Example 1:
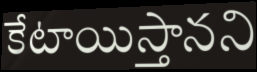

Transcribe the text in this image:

కేటాయిస్తానని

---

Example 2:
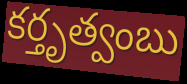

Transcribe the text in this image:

కర్తృత్వంబు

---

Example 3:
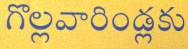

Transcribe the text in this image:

గొల్లవారిండ్లకు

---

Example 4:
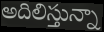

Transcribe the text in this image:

అదిలిస్తున్నా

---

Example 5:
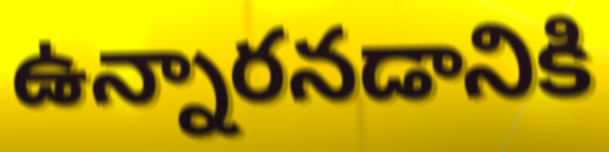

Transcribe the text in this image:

ఉన్నారనడానికి